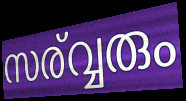
സര്വ്വരും